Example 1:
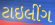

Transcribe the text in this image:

ટાઇલીંગ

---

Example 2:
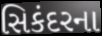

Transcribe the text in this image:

સિકંદરના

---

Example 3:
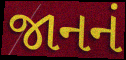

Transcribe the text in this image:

જાનનં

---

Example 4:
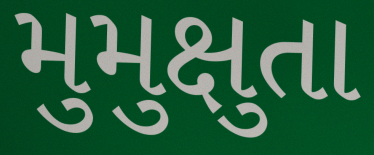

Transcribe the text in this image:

મુમુક્ષુતા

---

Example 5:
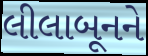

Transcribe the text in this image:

લીલાબૂનને